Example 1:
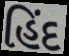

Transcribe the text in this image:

હિંદ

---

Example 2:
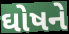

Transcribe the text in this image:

ઘોષને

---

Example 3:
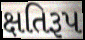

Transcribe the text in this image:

ક્ષતિરૂપ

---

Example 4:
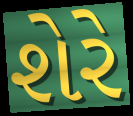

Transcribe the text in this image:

શેરે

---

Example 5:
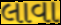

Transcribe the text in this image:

લાવા